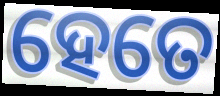
ହେତେ